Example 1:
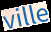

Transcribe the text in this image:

ville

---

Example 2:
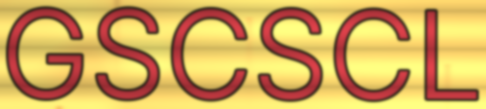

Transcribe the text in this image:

GSCSCL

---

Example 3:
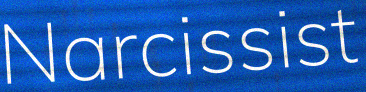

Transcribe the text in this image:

Narcissist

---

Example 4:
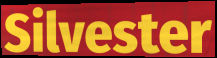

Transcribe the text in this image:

Silvester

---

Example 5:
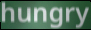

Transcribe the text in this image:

hungry